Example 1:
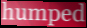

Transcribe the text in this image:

humped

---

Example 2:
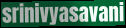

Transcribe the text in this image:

srinivyasavani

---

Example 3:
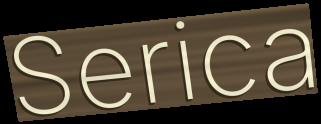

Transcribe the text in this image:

Serica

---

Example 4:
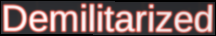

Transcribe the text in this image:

Demilitarized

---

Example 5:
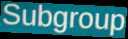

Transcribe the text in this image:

Subgroup